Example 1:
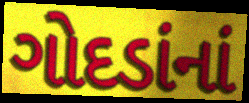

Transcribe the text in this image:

ગોદડાંનાં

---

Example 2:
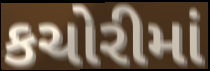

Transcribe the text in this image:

કચોરીમાં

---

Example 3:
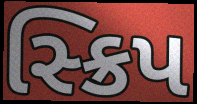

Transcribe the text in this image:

સ્ક્રિપ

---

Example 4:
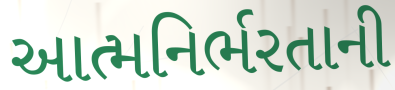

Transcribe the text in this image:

આત્મનિર્ભરતાની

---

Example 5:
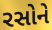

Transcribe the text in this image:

રસોને